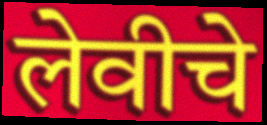
लेवीचे